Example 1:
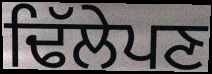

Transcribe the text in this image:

ਢਿੱਲੇਪਣ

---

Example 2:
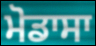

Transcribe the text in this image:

ਮੋਡਾਸਾ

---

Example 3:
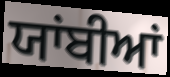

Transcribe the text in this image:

ਯਾਂਬੀਆਂ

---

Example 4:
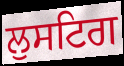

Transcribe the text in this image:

ਲੁਸਟਿਗ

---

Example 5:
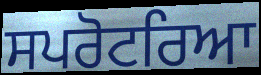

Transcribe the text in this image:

ਸਪਰੋਟਰਿਆ